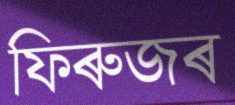
ফিৰুজৰ